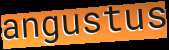
angustus